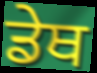
ਡੇਥ